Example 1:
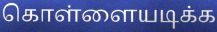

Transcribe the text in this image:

கொள்ளையடிக்க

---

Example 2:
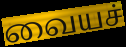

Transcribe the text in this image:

வையச்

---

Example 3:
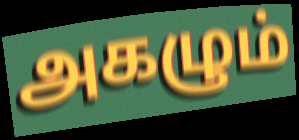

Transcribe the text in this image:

அகழும்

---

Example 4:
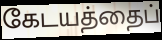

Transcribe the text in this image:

கேடயத்தைப்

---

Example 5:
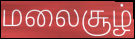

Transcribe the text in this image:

மலைசூழ்